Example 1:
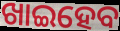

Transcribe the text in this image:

ଖାଇହେବ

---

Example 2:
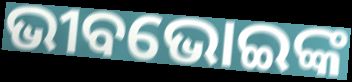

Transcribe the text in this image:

ଭୀବଭୋଇଙ୍କ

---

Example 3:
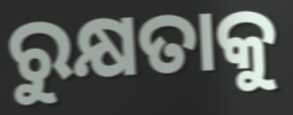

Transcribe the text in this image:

ରୁକ୍ଷତାକୁ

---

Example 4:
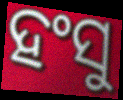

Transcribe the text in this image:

ହଂସୁ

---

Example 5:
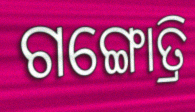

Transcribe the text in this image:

ଗଙ୍ଗୋତ୍ରି